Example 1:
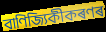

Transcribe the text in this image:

বাণিজ্যিকীকৰণৰ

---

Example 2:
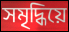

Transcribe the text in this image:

সমৃদ্ধিয়ে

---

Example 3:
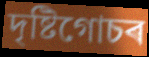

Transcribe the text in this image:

দৃষ্টিগোচৰ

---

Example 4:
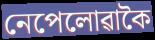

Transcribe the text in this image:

নেপেলোৱাকৈ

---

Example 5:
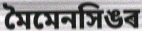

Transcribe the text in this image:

মৈমেনসিঙৰ